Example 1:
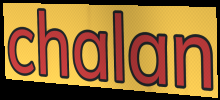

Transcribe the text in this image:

chalan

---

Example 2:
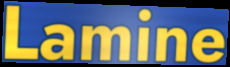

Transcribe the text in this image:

Lamine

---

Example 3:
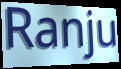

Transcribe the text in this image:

Ranju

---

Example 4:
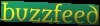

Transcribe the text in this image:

buzzfeed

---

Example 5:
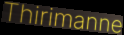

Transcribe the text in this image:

Thirimanne